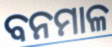
ବନମାଳ